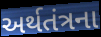
અર્થતંત્રના